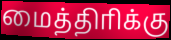
மைத்திரிக்கு